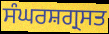
ਸੰਘਰਸ਼ਗ੍ਰਸਤ